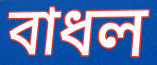
বাধল